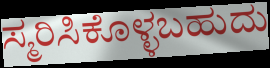
ಸ್ಮರಿಸಿಕೊಳ್ಳಬಹುದು